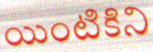
యింటికిని